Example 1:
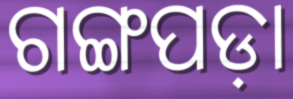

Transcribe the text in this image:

ଗଙ୍ଗପଡ଼ା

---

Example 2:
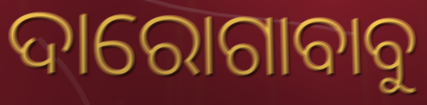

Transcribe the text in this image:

ଦାରୋଗାବାବୁ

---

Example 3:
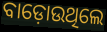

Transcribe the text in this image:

ବାଡ଼ୋଉଥିଲେ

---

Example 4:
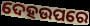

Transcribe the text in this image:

ଦେହଉପରେ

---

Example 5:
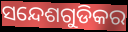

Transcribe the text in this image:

ସନ୍ଦେଶଗୁଡିକର